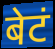
बेटं